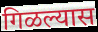
गिळल्यास